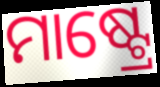
ମାଷ୍ଟ୍ରେ